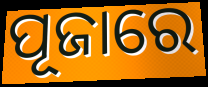
ପୂଜାରେ